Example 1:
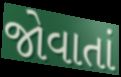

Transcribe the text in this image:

જોવાતાં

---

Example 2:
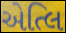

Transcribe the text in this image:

એત્લિ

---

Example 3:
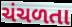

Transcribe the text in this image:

ચંચળતા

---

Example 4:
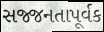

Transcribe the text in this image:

સજ્જનતાપૂર્વક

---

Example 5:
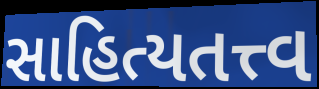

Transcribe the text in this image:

સાહિત્યતત્ત્વ